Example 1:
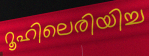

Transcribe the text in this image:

റൂഹിലെരിയിച്ച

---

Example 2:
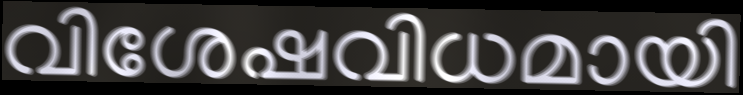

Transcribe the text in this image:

വിശേഷവിധമായി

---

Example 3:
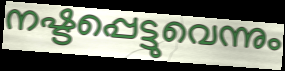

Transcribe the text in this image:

നഷ്ടപ്പെട്ടുവെന്നും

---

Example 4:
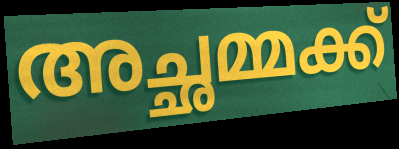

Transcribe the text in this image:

അച്ഛമ്മക്ക്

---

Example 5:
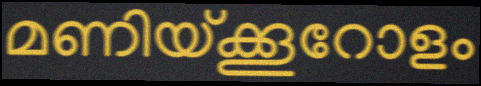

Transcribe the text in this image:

മണിയ്ക്കൂറോളം